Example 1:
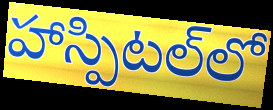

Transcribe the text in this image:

హాస్పిటల్‌లో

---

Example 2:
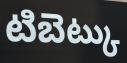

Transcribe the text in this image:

టిబెట్కు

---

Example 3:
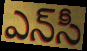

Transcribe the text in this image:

ఎన్‌సీ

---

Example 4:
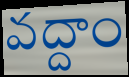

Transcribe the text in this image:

వద్దాం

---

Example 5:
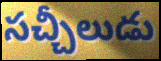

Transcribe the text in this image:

సచ్చీలుడు